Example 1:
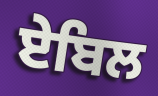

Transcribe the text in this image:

ਏਬਿਲ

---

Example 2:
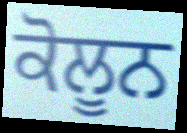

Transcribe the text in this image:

ਕੋਲੂਨ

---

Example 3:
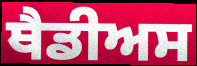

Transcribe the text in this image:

ਥੈਡੀਅਸ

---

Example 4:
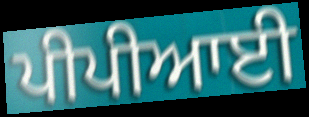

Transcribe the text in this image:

ਪੀਪੀਆਈ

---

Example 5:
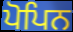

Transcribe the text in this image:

ਪੋਪਿਨ